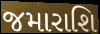
જમારાશિ